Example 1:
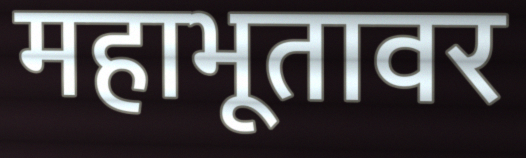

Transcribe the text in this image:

महाभूतावर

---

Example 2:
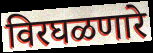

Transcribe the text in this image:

विरघळणारे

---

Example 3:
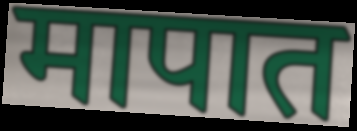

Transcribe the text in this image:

मापात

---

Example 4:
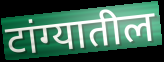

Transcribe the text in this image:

टांग्यातील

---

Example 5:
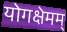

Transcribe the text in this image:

योगक्षेमम्